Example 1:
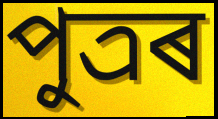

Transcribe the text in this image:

পুত্ৰৰ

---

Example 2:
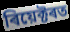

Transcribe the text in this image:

ৰিয়েক্টৰত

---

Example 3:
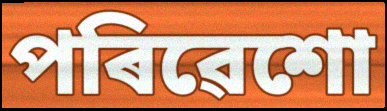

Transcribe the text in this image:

পৰিৱেশো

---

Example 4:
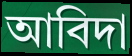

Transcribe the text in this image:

আবিদা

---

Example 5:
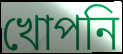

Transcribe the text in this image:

খোপনি